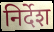
निर्देश